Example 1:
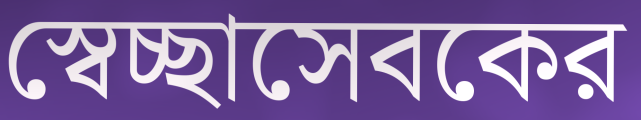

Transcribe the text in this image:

স্বেচ্ছাসেবকের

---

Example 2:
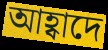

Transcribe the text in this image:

আহ্বাদে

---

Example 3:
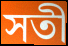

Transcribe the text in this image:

সতী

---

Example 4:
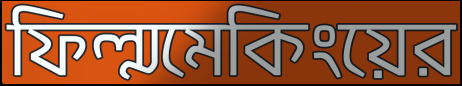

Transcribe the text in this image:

ফিল্মমেকিংয়ের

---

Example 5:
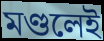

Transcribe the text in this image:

মণ্ডলেই